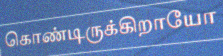
கொண்டிருக்கிறாயோ